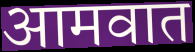
आमवात